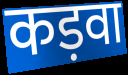
कड़वा